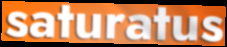
saturatus